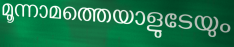
മൂന്നാമത്തെയാളുടേയും